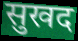
सुखद